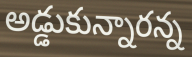
అడ్డుకున్నారన్న